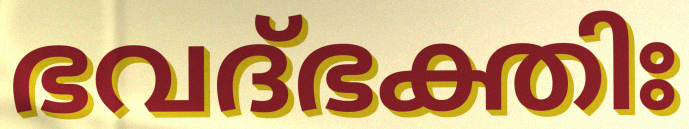
ഭവദ്ഭക്തിഃ